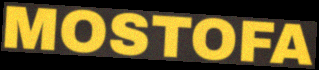
MOSTOFA